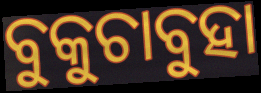
ବୁକୁଚାବୁହା